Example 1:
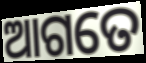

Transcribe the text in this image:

ଆଗତେ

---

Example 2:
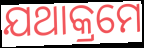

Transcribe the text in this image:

ଯଥାକ୍ରମେ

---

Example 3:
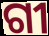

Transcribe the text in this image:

ଗୀ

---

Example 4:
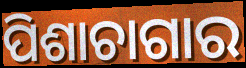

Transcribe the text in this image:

ପିଶାଚାଗାର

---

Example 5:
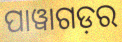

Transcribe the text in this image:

ପାୱାଗଡ଼ର